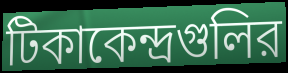
টিকাকেন্দ্রগুলির